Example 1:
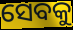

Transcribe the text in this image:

ସେବକୁ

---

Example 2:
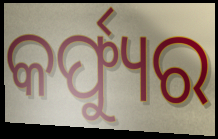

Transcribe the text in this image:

କର୍ଫ୍ୟୁର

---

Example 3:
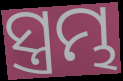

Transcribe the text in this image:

ସ୍ତ୍ରମ୍ଭ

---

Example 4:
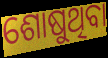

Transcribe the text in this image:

ଶୋଷୁଥିବା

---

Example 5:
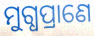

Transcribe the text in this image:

ମୁଗ୍ଧପ୍ରାଣେ